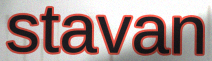
stavan